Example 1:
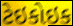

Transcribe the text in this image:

ટેઇકોઇક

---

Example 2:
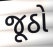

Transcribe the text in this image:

જૂઠો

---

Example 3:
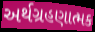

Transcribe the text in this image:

અર્થગ્રહણાત્મક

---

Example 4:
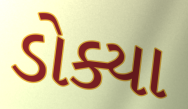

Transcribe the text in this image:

ડોક્યા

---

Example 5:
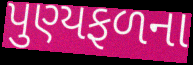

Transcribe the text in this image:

પુણ્યફળના